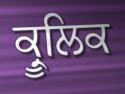
ਕ੍ਰੂਲਿਕ